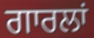
ਗਾਰਲਾਂ